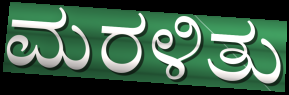
ಮರಳಿತು